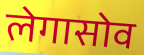
लेगासोव